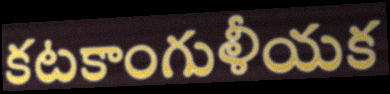
కటకాంగుళీయక